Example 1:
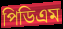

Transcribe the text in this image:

পিডিএম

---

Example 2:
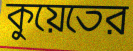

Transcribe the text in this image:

কুয়েতের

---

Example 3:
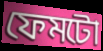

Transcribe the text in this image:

ফেমটো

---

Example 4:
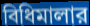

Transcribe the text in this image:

বিধিমালার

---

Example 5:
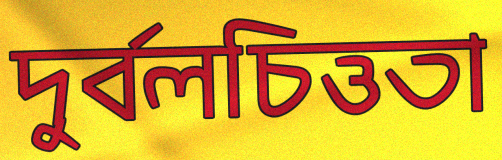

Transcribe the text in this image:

দুর্বলচিত্ততা